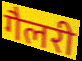
गैलरी